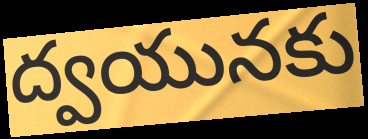
ద్వయునకు